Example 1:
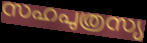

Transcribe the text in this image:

സഹപുത്രസ്യ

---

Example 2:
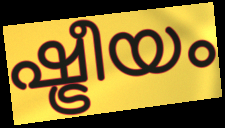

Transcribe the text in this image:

ഷ്ട്രീയം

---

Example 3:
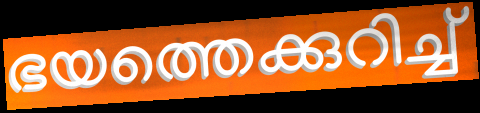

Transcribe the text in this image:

ഭയത്തെക്കുറിച്ച്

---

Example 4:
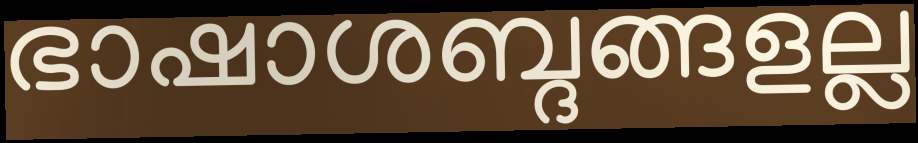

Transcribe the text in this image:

ഭാഷാശബ്ദങ്ങളല്ല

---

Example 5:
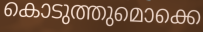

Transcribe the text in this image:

കൊടുത്തുമൊക്കെ